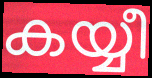
കയ്യീ